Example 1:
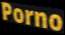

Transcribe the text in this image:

Porno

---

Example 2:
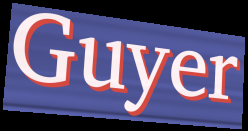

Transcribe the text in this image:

Guyer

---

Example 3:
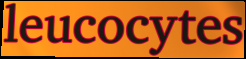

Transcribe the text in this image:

leucocytes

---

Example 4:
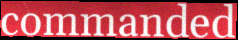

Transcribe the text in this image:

commanded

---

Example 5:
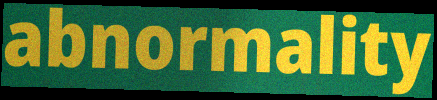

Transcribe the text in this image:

abnormality